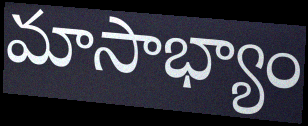
మాసాభ్యాం